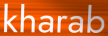
kharab